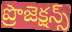
ప్రొజెక్షన్స్